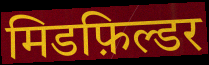
मिडफ़िल्डर